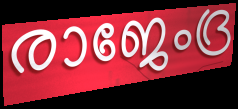
രാജേംദ്ര